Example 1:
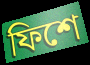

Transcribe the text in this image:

ফিশে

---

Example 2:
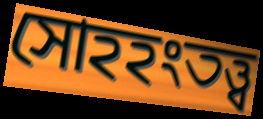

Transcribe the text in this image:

সোহহংতত্ত্ব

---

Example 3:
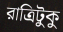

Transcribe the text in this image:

রাত্রিটুকু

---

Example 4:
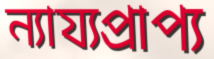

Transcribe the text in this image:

ন্যায্যপ্রাপ্য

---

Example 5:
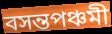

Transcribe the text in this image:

বসন্তপঞ্চমী